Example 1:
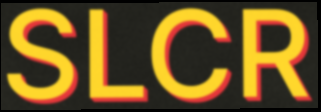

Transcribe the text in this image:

SLCR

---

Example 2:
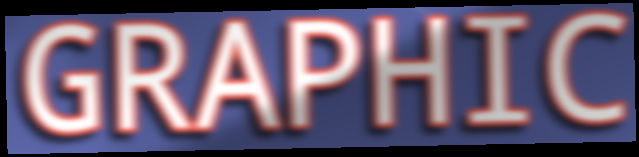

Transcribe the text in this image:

GRAPHIC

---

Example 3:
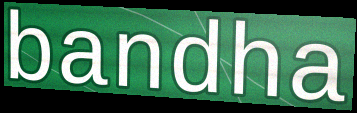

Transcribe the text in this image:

bandha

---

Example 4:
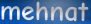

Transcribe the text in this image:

mehnat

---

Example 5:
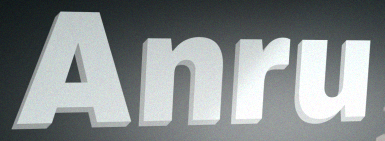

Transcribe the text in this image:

Anru